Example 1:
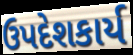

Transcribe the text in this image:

ઉપદેશકાર્ય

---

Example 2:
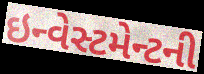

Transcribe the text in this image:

ઇન્વેસ્ટમેન્ટની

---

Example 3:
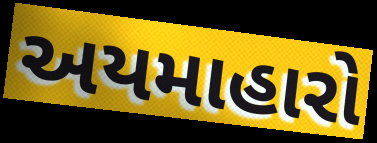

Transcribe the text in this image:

અયમાહારો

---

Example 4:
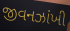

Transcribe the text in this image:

જીવનઝાંખી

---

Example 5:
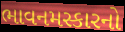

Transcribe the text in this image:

ભાવનમસ્કારનો